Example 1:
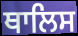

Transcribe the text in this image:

ਥਾਲਿਸ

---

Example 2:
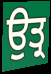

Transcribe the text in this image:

ਉਤ੍ਰ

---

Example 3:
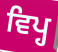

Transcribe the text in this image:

ਵਿਪ੍ਹ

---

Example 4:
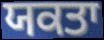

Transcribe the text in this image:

ਯਕਤਾ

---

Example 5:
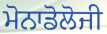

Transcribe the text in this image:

ਮੋਨਾਡੋਲੋਜੀ